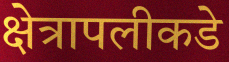
क्षेत्रापलीकडे